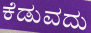
ಕೆಡುವದು